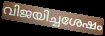
വിജയിച്ചശേഷം